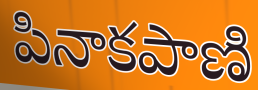
పినాకపాణి